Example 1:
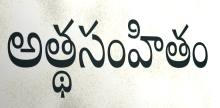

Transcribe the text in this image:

అత్థసంహితం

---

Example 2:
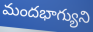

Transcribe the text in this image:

మందభాగ్యుని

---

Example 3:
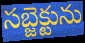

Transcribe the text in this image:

సబ్జెక్టును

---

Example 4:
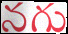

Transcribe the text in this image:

నగు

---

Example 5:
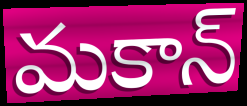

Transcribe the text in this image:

మకాన్